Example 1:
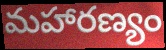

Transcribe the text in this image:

మహారణ్యం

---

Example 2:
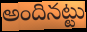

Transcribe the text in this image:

అందినట్టు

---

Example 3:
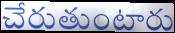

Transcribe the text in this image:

చేరుతుంటారు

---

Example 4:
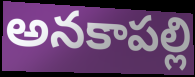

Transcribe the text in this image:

అనకాపల్లి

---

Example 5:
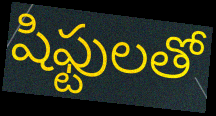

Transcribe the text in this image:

షిఫ్టులతో